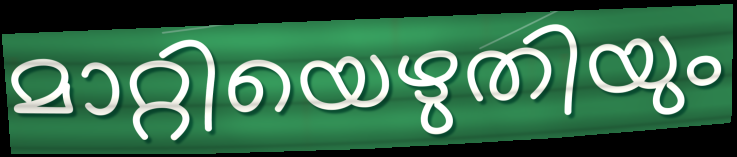
മാറ്റിയെഴുതിയും